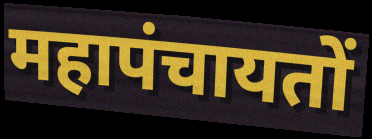
महापंचायतों